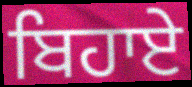
ਬਿਹਾਏ